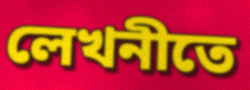
লেখনীতে